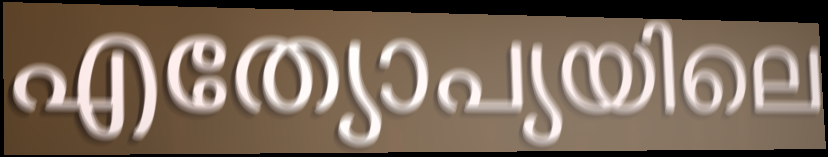
എത്യോപ്യയിലെ